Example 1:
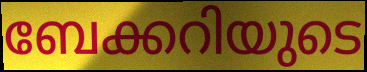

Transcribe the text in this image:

ബേക്കറിയുടെ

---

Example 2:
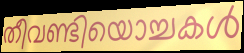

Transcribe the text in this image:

തീവണ്ടിയൊച്ചകൾ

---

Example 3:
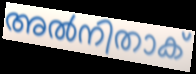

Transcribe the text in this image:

അൽനിതാക്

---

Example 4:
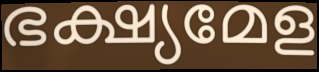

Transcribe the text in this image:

ഭക്ഷ്യമേള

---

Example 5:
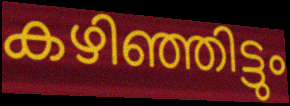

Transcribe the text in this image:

കഴിഞ്ഞിട്ടും